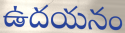
ఉదయనం